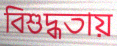
বিশুদ্ধতায়